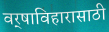
वर्षाविहारासाठी